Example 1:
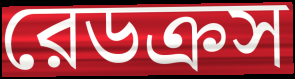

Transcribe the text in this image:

রেডক্রস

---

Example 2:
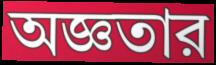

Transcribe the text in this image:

অজ্ঞতার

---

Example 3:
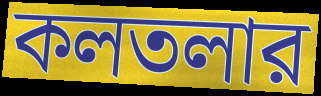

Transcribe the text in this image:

কলতলার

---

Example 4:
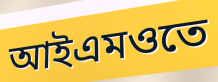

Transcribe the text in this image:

আইএমওতে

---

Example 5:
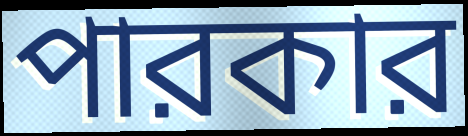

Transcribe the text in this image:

পারকার